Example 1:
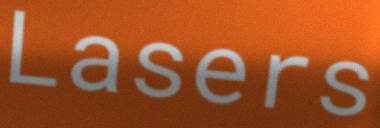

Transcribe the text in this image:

Lasers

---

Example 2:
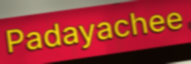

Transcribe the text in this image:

Padayachee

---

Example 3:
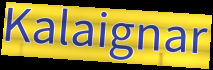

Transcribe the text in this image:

Kalaignar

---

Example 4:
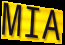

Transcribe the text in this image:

MIA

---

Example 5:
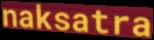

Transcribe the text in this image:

naksatra